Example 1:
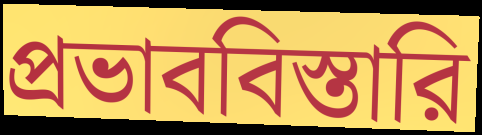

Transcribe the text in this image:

প্রভাববিস্তারি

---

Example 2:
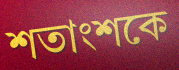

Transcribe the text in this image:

শতাংশকে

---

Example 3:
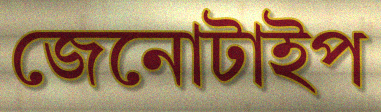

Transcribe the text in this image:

জেনোটাইপ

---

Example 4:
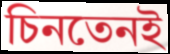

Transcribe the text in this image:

চিনতেনই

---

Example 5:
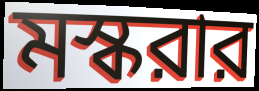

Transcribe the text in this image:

মস্করার